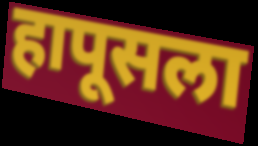
हापूसला